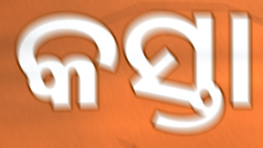
କସ୍ତା